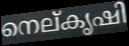
നെല്കൃഷി